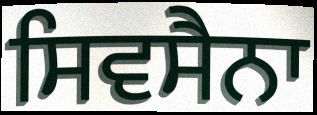
ਸਿਵਸੈਨਾ